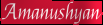
Amanushyan